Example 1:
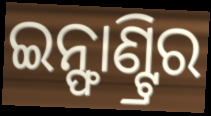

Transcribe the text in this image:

ଇନ୍ଫାଣ୍ଟ୍ରିର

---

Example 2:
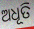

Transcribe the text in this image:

ଅଧୂତି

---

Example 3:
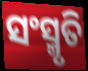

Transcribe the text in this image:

ସଂସ୍ମୃତି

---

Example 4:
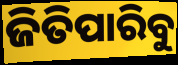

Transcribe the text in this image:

ଜିତିପାରିବୁ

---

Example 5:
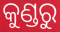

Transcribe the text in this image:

କୁଣ୍ଡରୁ